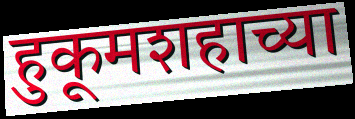
हुकूमशहाच्या